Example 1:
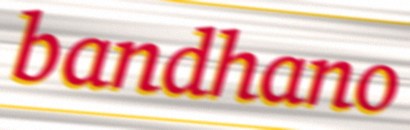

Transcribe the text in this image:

bandhano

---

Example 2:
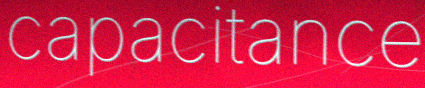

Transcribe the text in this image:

capacitance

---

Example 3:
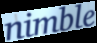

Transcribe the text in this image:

nimble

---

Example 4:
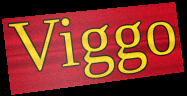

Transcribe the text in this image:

Viggo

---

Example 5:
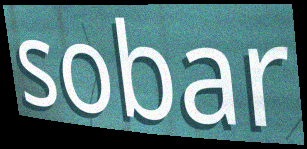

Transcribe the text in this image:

sobar